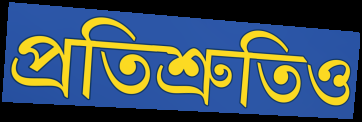
প্রতিশ্রুতিও